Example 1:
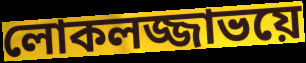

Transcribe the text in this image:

লোকলজ্জাভয়ে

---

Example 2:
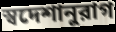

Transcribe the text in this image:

স্বদেশানুরাগ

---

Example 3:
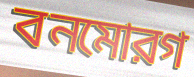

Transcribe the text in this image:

বনমোরগ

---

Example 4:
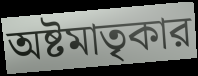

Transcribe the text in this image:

অষ্টমাতৃকার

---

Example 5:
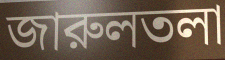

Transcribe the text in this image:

জারুলতলা